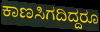
ಕಾಣಸಿಗದಿದ್ದರೂ